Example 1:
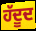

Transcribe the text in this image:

ਹੱਦੂਦ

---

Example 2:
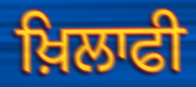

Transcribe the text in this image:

ਖ਼ਿਲਾਫੀ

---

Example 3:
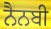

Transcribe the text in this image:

ਨੈਨਬੀ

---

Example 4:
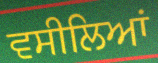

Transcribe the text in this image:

ਵਸੀਲਿਆਂ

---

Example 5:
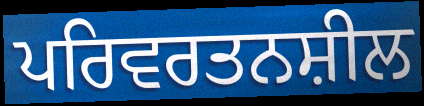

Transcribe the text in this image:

ਪਰਿਵਰਤਨਸ਼ੀਲ